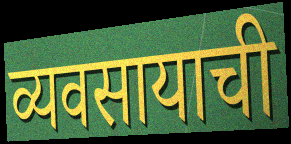
व्यवसायाची